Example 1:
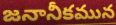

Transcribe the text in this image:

జనానీకమున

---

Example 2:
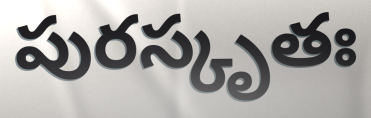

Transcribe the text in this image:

పురస్కృతః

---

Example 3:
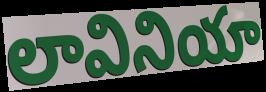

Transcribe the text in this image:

లావినియా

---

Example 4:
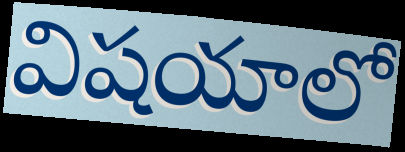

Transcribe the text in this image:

విషయాలో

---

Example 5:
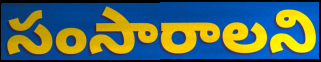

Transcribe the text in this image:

సంసారాలని